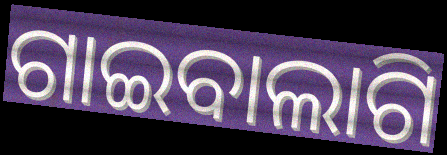
ଗାଇବାଲାଗି